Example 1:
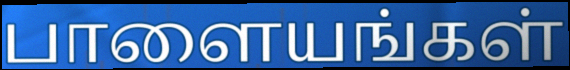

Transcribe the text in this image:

பாளையங்கள்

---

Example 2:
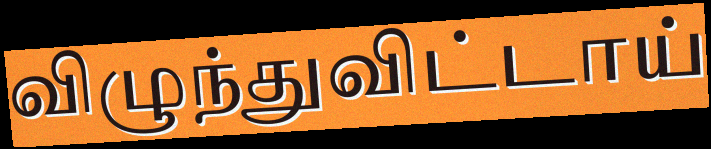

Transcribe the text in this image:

விழுந்துவிட்டாய்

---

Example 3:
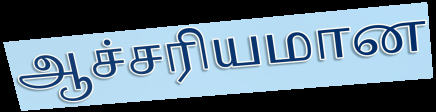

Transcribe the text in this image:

ஆச்சரியமான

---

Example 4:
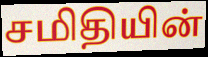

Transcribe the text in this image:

சமிதியின்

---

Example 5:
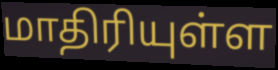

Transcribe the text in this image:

மாதிரியுள்ள